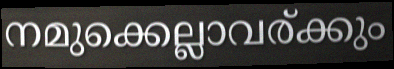
നമുക്കെല്ലാവര്ക്കും